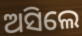
ଅସିଲେ